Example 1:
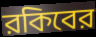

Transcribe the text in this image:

রকিবের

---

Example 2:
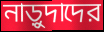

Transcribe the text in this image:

নাড়ুদাদের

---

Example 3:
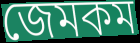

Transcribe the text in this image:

জেমকম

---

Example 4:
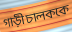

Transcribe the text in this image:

গাড়ীচালককে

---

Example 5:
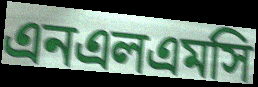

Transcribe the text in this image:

এনএলএমসি